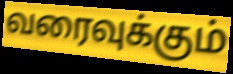
வரைவுக்கும்